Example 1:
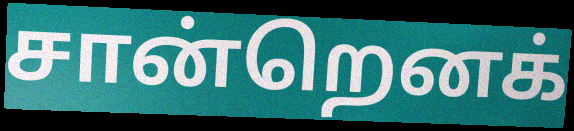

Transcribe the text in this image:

சான்றெனக்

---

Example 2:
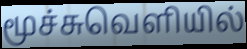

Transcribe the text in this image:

மூச்சுவெளியில்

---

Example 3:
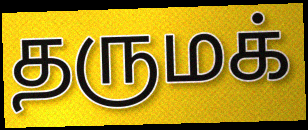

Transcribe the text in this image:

தருமக்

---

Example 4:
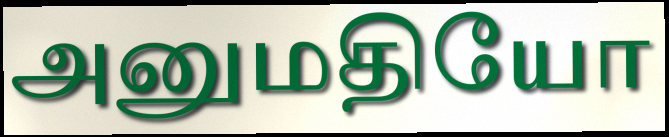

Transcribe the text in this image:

அனுமதியோ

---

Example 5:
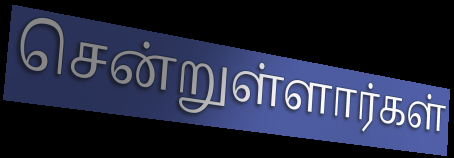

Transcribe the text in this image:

சென்றுள்ளார்கள்